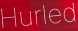
Hurled